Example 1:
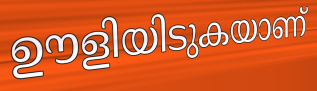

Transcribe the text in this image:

ഊളിയിടുകയാണ്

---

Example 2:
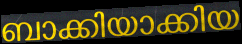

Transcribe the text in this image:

ബാക്കിയാക്കിയ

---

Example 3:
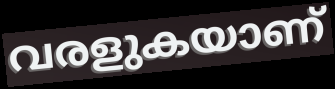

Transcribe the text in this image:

വരളുകയാണ്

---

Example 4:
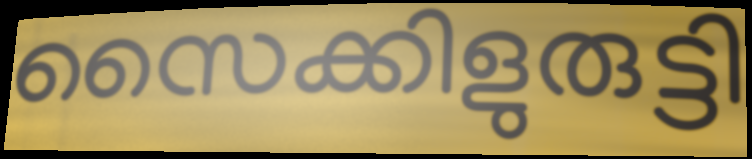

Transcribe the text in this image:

സൈക്കിളുരുട്ടി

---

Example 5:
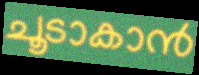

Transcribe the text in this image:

ചൂടാകാൻ